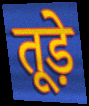
तूड़े